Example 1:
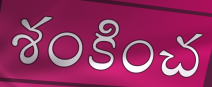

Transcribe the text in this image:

శంకించ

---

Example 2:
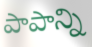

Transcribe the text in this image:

పాపాన్ని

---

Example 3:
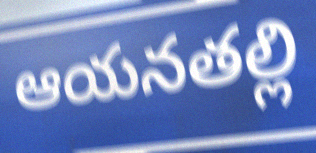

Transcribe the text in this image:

ఆయనతల్లి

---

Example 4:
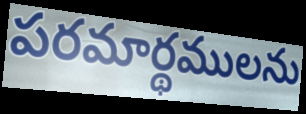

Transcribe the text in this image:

పరమార్థములను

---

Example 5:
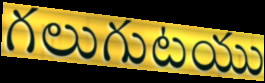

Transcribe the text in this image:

గలుగుటయు